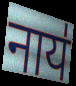
नाय॑